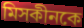
মিসকীনকে